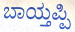
ಬಾಯ್ತಪ್ಪಿ